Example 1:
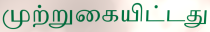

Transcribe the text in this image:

முற்றுகையிட்டது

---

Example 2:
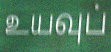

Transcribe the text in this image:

உயவுப்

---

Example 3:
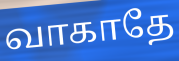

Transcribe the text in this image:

வாகாதே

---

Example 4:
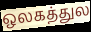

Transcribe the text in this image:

ஒலகத்துல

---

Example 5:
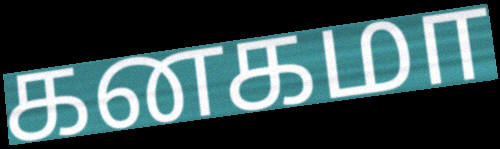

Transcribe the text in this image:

கனகமா